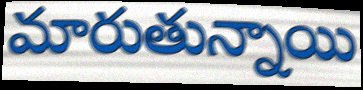
మారుతున్నాయి